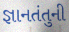
જ્ઞાનતંતુની